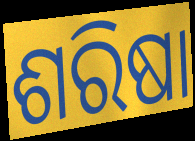
ଶରିଷା